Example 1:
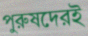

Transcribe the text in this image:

পুরুষদেরই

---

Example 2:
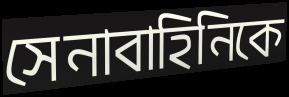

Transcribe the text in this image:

সেনাবাহিনিকে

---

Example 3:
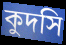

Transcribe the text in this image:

কুদসি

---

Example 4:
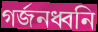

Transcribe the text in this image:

গর্জনধ্বনি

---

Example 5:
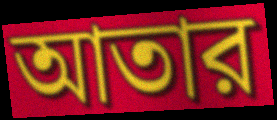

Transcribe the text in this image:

আতার